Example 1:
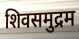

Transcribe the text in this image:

शिवसमुद्रम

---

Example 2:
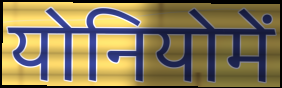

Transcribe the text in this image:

योनियोमें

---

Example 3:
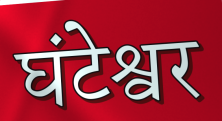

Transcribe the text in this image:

घंटेश्वर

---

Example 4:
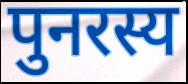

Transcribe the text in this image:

पुनरस्य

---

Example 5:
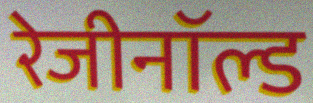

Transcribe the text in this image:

रेजीनॉल्ड